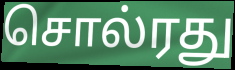
சொல்ரது